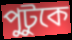
পুটুকে